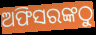
ଅଫିସରଙ୍କଠୁ